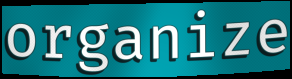
organize